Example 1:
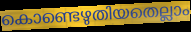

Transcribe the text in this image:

കൊണ്ടെഴുതിയതെല്ലാം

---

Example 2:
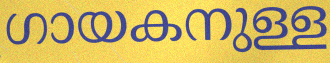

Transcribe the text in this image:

ഗായകനുള്ള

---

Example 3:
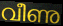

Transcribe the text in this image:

വീണു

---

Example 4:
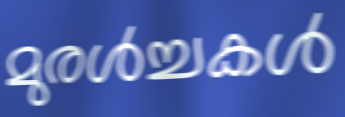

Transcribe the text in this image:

മുരൾച്ചകൾ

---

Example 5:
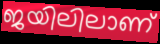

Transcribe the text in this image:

ജയിലിലാണ്